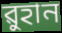
ৱুহান